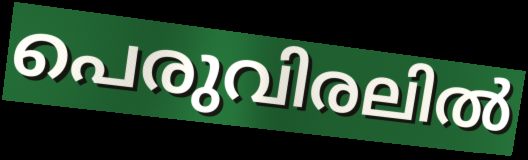
പെരുവിരലിൽ